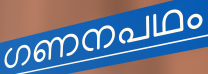
ഗണനപഥം